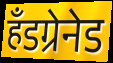
हँडग्रेनेड